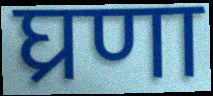
घ्रणा